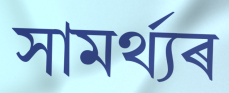
সামৰ্থ্যৰ